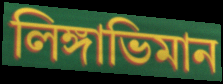
লিঙ্গাভিমান